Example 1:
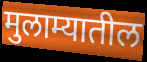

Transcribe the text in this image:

मुलाम्यातील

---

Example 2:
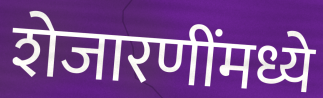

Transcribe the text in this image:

शेजारणींमध्ये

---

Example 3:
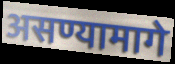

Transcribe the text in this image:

असण्यामागे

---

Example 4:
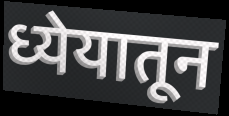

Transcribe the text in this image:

ध्येयातून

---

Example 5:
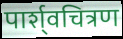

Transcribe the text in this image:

पार्श्वचित्रण